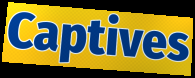
Captives